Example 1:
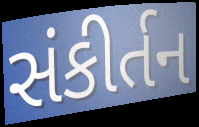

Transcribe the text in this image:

સંકીર્તન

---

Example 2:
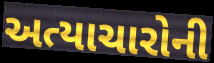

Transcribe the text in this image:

અત્યાચારોની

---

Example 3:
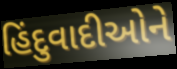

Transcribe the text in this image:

હિંદુવાદીઓને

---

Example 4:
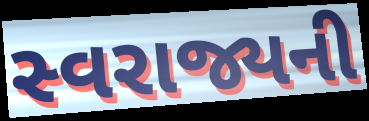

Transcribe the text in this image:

સ્વરાજ્યની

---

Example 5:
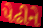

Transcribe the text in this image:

પેઢીને